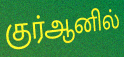
குர்ஆனில்